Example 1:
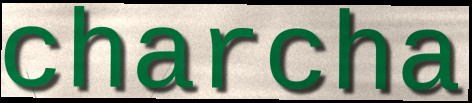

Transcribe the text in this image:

charcha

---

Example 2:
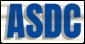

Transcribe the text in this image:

ASDC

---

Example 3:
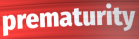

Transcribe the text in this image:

prematurity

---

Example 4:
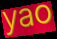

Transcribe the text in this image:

yao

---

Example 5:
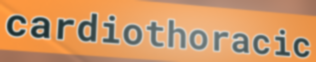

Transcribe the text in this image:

cardiothoracic